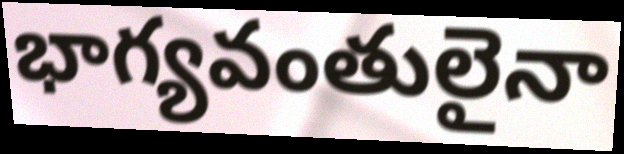
భాగ్యవంతులైనా